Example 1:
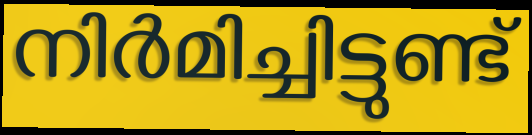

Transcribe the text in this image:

നിർമിച്ചിട്ടുണ്ട്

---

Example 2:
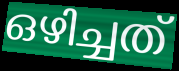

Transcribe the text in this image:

ഒഴിച്ചത്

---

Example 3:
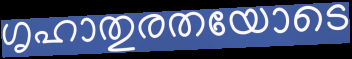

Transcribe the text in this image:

ഗൃഹാതുരതയോടെ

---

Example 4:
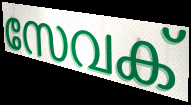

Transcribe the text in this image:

സേവക്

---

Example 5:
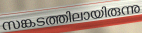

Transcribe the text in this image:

സങ്കടത്തിലായിരുന്നു